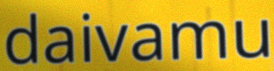
daivamu